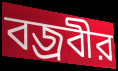
বজ্রবীর